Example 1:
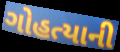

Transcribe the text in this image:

ગોહત્યાની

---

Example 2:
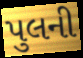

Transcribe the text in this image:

પુલની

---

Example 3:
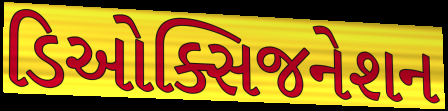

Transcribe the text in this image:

ડિઓક્સિજનેશન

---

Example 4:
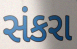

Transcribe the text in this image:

સંકરા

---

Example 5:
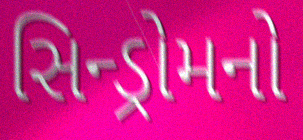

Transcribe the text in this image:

સિન્ડ્રોમનો